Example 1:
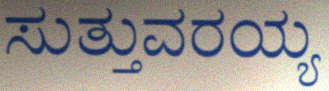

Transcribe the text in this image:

ಸುತ್ತುವರಯ್ಯ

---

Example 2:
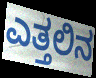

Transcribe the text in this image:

ಎತ್ತಲಿನ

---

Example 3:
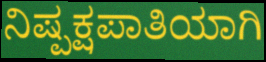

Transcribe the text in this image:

ನಿಷ್ಪಕ್ಷಪಾತಿಯಾಗಿ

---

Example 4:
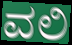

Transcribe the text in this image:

ವಲಿ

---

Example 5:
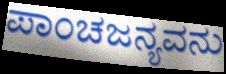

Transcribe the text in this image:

ಪಾಂಚಜನ್ಯವನು